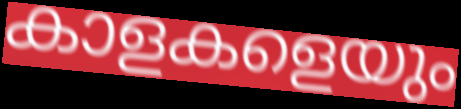
കാളകളെയും